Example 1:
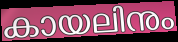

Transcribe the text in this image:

കായലിനും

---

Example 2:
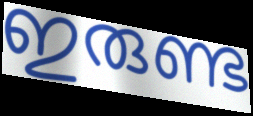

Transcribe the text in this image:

ഇരുണ്ട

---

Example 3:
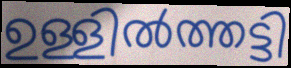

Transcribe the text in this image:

ഉള്ളിൽത്തട്ടി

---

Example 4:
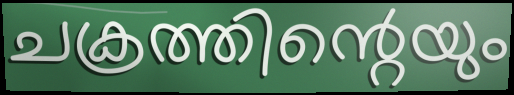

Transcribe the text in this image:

ചക്രത്തിന്റെയും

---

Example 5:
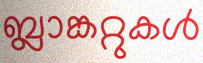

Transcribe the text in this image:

ബ്ലാങ്കറ്റുകൾ